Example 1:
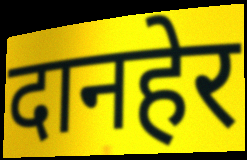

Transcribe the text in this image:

दानहेर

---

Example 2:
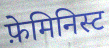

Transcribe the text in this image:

फ़ेमिनिस्ट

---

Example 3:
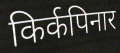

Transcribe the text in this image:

किर्कपिनार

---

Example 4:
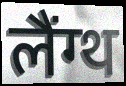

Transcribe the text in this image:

लैंग्थ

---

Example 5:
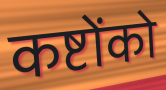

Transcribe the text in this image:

कष्टोंको